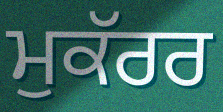
ਮੁਕੱਰਰ